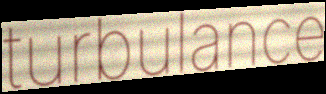
turbulance